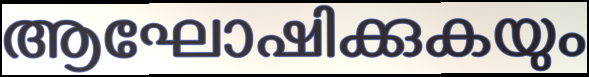
ആഘോഷിക്കുകയും